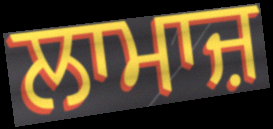
ਲਾਮਾਜ਼